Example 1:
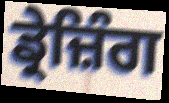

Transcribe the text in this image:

ਡ੍ਰੇਜ਼ਿੰਗ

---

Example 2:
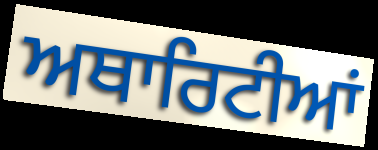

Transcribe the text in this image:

ਅਥਾਰਿਟੀਆਂ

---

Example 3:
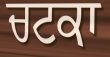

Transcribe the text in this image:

ਚਟਕਾ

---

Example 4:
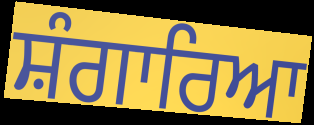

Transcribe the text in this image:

ਸ਼ੰਗਾਰਿਆ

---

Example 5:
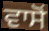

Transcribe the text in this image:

ਵਾਸੋਂ